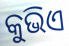
କୁଭିଏ